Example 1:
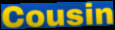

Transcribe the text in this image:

Cousin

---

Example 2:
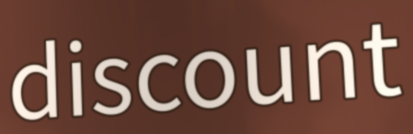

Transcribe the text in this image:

discount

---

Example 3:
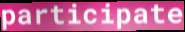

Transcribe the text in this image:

participate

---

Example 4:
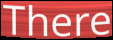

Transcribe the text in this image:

There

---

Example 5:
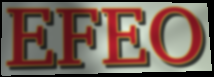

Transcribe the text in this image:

EFEO